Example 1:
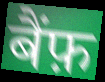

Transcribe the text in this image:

बैंफ़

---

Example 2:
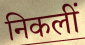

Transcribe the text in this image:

निकलीं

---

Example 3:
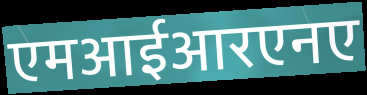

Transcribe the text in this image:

एमआईआरएनए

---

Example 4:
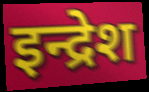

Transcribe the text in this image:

इन्द्रेश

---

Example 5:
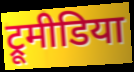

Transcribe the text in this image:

ट्रूमीडिया